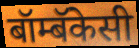
बॉम्बॅकेसी